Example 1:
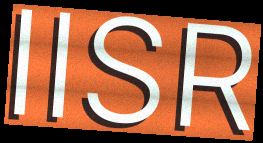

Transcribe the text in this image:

IISR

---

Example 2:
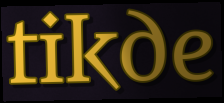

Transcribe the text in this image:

tikde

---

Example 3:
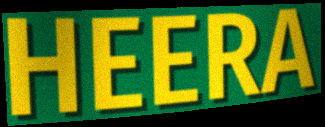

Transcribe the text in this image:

HEERA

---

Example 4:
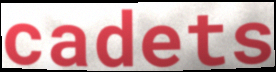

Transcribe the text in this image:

cadets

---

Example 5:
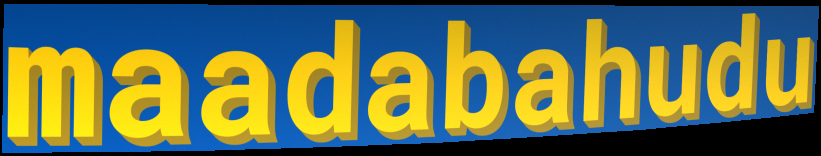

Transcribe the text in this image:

maadabahudu